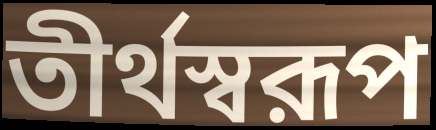
তীর্থস্বরূপ